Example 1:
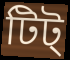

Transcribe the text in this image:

টিট্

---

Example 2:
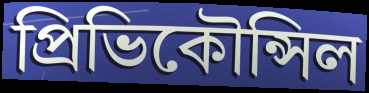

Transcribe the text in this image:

প্রিভিকৌন্সিল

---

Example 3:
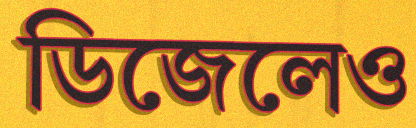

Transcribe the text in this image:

ডিজেলেও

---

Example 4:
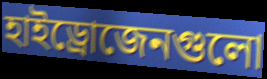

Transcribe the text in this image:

হাইড্রোজেনগুলো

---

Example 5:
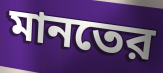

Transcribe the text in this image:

মানতের